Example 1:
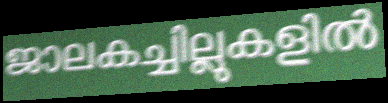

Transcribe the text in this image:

ജാലകച്ചില്ലുകളിൽ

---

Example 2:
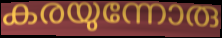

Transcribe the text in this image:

കരയുന്നോരു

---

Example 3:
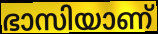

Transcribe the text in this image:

ഭാസിയാണ്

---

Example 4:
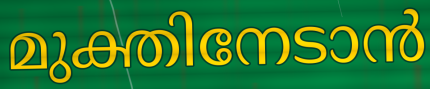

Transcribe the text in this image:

മുക്തിനേടാൻ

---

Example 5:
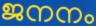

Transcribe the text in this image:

ജനനം